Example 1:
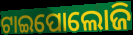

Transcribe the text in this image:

ଟାଇପୋଲୋଜି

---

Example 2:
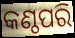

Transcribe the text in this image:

କଣ୍ଠପରି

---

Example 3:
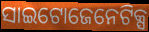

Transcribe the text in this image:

ସାଇଟୋଜେନେଟିକ୍ସ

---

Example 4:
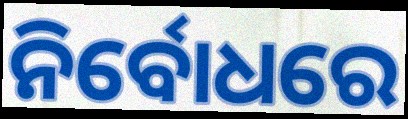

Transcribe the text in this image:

ନିର୍ବୋଧରେ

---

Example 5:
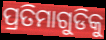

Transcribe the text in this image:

ପ୍ରତିମାଗୁଡିକୁ